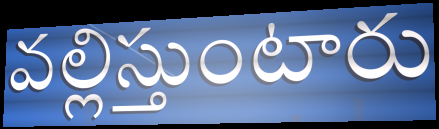
వల్లిస్తుంటారు